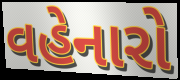
વહેનારો